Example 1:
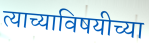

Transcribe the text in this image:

त्याच्याविषयीच्या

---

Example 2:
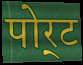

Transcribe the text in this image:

पोर्ट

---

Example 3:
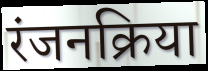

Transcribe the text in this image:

रंजनक्रिया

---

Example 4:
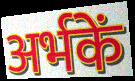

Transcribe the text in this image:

अर्भकें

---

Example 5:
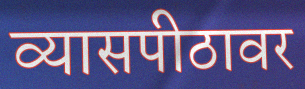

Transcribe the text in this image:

व्यासपीठावर